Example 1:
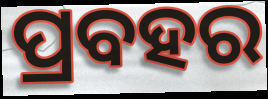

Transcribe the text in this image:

ପ୍ରବହର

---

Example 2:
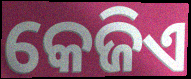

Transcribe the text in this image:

କେଜିଏ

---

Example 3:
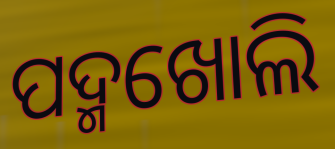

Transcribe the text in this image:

ପଦ୍ମଖୋଲି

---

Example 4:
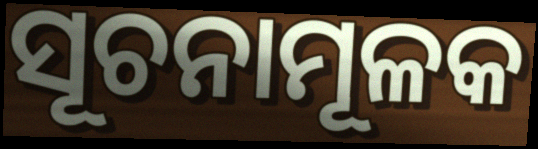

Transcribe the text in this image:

ସୂଚନାମୂଳକ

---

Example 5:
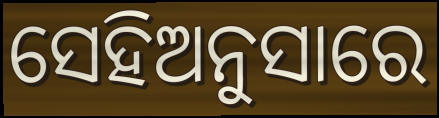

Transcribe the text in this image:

ସେହିଅନୁସାରେ